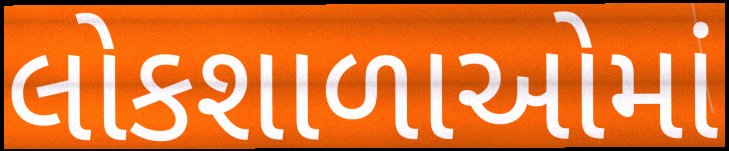
લોકશાળાઓમાં